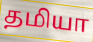
தமியா